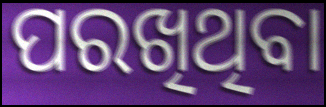
ପରଖିଥିବା